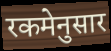
रकमेनुसार